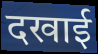
दखाई